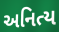
અનિત્ય